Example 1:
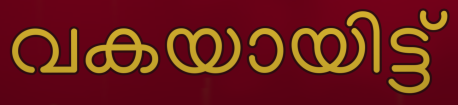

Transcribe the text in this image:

വകയായിട്ട്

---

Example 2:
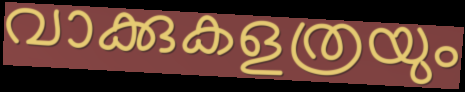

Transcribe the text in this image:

വാക്കുകളത്രയും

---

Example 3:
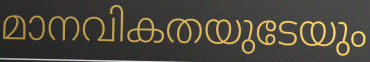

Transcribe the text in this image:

മാനവികതയുടേയും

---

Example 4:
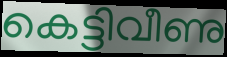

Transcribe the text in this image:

കെട്ടിവീണു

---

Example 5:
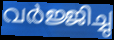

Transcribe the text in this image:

വർജ്ജിച്ചു